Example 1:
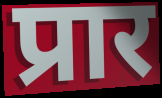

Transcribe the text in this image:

प्रार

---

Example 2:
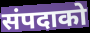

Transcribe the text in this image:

संपदाको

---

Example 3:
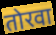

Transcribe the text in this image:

तोरवा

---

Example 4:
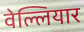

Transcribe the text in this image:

वेल्लियार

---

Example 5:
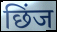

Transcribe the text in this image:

छिंज